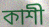
কাশী